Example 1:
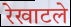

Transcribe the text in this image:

रेखाटले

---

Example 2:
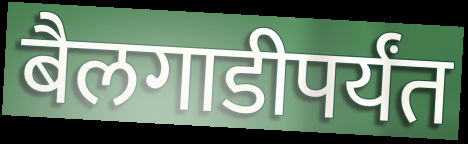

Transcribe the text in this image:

बैलगाडीपर्यंत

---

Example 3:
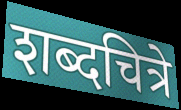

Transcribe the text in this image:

शब्दचित्रे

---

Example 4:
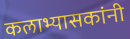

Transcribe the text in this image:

कलाभ्यासकांनी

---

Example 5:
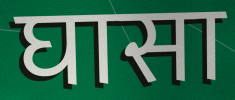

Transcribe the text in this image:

घासा